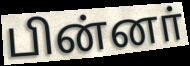
பின்னர்